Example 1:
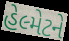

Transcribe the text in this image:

હેલ્મેટને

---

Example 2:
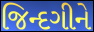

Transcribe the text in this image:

જિન્દગીને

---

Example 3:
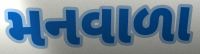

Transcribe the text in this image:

મનવાળા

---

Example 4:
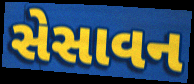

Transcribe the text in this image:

સેસાવન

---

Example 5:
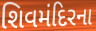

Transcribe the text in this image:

શિવમંદિરના